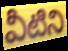
వీటిని